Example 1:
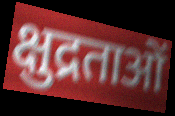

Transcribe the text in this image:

क्षुद्रताओं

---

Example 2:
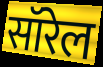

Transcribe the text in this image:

सॉरेल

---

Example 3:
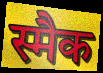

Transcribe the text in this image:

स्मैक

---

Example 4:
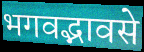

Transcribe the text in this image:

भगवद्भावसे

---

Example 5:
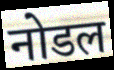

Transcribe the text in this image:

नोडल